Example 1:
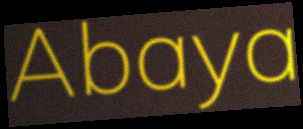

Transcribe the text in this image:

Abaya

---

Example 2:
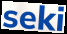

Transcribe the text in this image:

seki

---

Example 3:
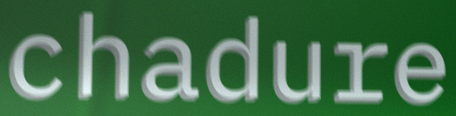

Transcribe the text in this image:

chadure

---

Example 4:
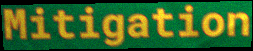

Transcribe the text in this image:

Mitigation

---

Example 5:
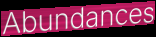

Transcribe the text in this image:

Abundances